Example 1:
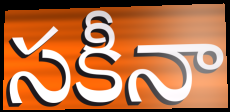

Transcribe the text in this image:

సకీనా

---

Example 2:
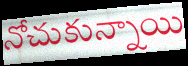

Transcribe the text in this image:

నోచుకున్నాయి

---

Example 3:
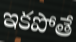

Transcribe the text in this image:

ఇకపోతే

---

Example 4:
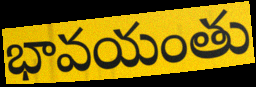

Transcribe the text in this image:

భావయంతు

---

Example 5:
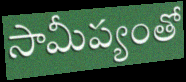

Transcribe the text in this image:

సామీప్యంతో